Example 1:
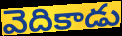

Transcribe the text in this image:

వెదికాడు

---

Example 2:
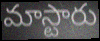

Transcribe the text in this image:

మాస్టారు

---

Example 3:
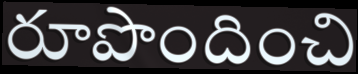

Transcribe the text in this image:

రూపొందించి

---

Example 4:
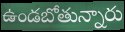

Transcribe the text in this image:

ఉండబోతున్నారు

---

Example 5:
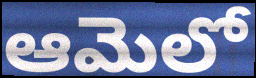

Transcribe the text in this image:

ఆమెలో